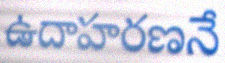
ఉదాహరణనే